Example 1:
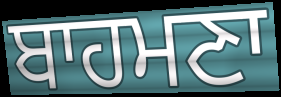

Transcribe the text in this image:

ਬਾਹਮਣਾ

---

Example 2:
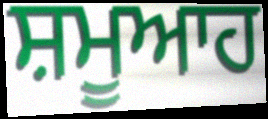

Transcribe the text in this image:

ਸ਼ਮੂਆਹ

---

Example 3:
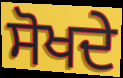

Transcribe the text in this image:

ਸੋਖਦੇ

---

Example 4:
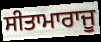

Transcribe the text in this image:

ਸੀਤਾਮਾਰਾਜੂ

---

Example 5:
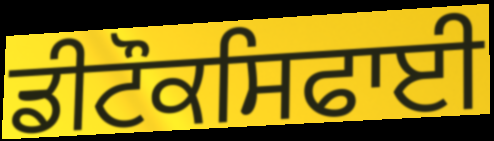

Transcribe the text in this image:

ਡੀਟੌਕਸਿਫਾਈ